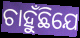
ଚାହୁଁଛିଯେ